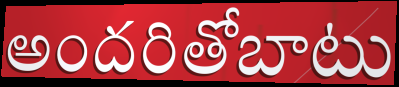
అందరితోబాటు